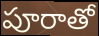
పూరాతో